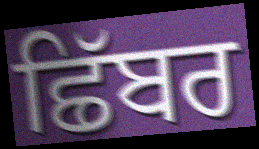
ਛਿੱਬਰ